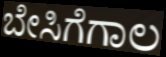
ಬೇಸಿಗೆಗಾಲ